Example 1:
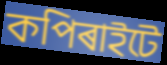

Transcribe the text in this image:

কপিৰাইটে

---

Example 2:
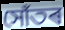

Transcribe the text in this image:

সোঁতৰ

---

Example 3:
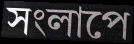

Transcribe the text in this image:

সংলাপে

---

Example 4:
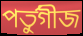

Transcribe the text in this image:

পৰ্তুগীজ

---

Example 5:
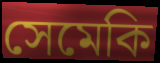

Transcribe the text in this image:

সেমেকি